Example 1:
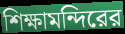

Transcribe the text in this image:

শিক্ষামন্দিরের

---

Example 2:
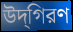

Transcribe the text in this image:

উদ্‌গিরণ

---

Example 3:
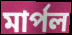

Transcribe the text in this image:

মার্পল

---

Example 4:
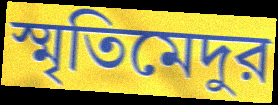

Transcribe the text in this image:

স্মৃতিমেদুর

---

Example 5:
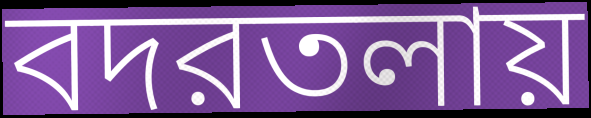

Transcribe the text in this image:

বদরতলায়